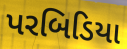
પરબિડિયા